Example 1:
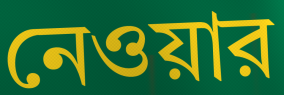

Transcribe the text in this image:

নেওয়ার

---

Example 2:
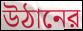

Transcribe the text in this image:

উঠানের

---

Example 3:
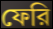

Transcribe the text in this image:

ফেরি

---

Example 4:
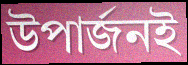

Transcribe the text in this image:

উপার্জনই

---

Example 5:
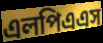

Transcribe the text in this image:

এলপিএএস